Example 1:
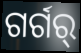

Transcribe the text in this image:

ଗର୍ଗର୍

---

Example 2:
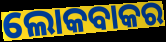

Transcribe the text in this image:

ଲୋକବାକର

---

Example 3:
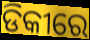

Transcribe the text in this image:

ଡିକୀରେ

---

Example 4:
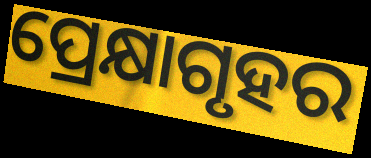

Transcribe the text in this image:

ପ୍ରେକ୍ଷାଗୃହର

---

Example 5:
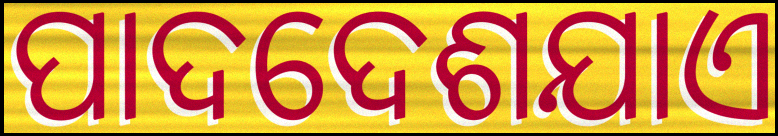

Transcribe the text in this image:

ପାଦଦେଶଯାଏ